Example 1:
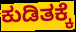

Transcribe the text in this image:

ಕುಡಿತಕ್ಕೆ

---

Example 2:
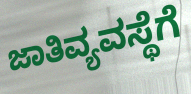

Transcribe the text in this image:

ಜಾತಿವ್ಯವಸ್ಥೆಗೆ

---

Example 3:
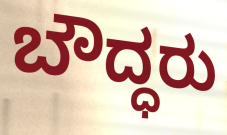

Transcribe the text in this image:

ಬೌದ್ಧರು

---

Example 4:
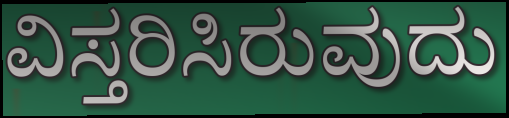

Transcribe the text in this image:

ವಿಸ್ತರಿಸಿರುವುದು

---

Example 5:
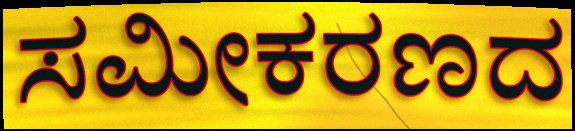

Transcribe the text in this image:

ಸಮೀಕರಣದ